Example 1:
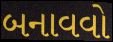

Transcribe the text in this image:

બનાવવો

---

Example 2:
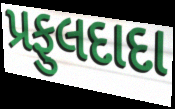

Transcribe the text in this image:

પ્રફુલદાદા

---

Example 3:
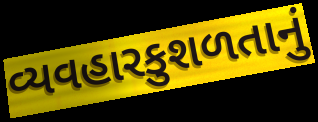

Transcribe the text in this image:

વ્યવહારકુશળતાનું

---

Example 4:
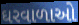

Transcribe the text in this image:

ઘરવાળાઓ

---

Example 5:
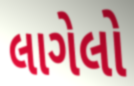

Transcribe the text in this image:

લાગેલો